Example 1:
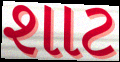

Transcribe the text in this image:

શાટ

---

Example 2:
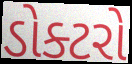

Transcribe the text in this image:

ડોક્ટરો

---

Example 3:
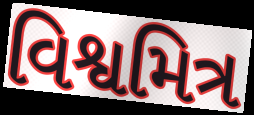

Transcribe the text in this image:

વિશ્વમિત્ર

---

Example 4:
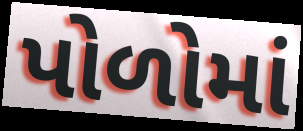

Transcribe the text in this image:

પોળોમાં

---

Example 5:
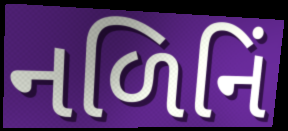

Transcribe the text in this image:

નળિનિં